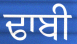
ਢਾਬੀ